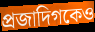
প্রজাদিগকেও